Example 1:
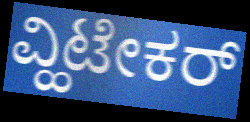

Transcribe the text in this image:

ವ್ಹಿಟೇಕರ್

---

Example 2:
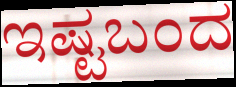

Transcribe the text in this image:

ಇಷ್ಟಬಂದ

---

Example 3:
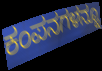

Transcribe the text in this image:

ಕಂಪನಗಳನ್ನೂ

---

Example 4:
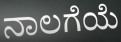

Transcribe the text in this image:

ನಾಲಗೆಯೆ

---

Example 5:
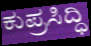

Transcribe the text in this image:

ಕುಪ್ರಸಿದ್ಧಿ